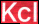
Kcl